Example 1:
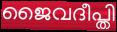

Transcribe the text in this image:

ജൈവദീപ്തി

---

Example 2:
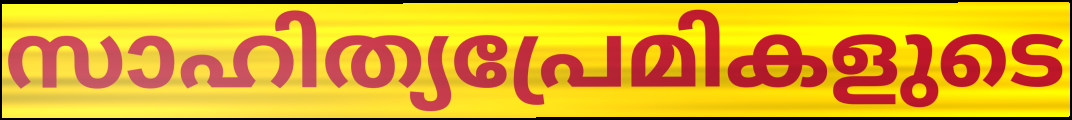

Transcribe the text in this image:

സാഹിത്യപ്രേമികളുടെ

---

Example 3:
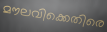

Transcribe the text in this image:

മൗലവിക്കെതിരെ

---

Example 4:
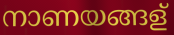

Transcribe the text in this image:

നാണയങ്ങള്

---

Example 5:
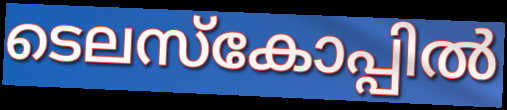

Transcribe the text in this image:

ടെലസ്കോപ്പിൽ